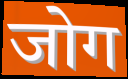
जोग